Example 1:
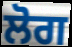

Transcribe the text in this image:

ਲੋਗ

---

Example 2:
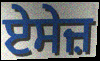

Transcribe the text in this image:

ਏਸੇਜ਼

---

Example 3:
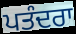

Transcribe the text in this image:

ਪਤੰਦਰਾ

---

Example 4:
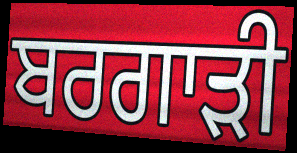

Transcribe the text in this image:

ਬਰਗਾੜੀ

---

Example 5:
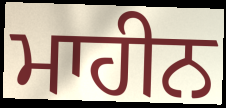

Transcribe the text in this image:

ਮਾਹੀਨ